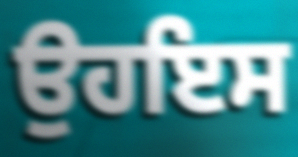
ਉਹਇਸ